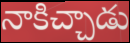
నాకిచ్చాడు